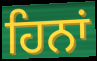
ਹਿਨਾਂ